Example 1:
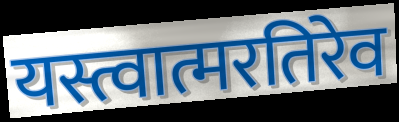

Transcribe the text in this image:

यस्त्वात्मरतिरेव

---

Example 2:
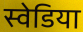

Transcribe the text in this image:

स्वेडिया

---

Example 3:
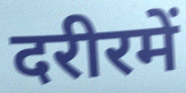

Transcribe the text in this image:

दरीरमें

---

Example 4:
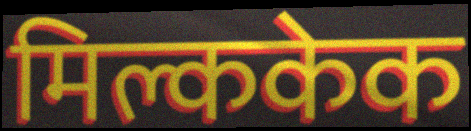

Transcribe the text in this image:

मिल्ककेक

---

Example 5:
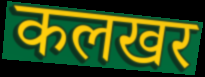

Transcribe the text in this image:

कलखर